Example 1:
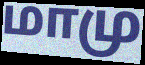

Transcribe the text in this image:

மாமு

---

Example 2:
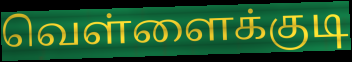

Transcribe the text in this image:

வெள்ளைக்குடி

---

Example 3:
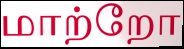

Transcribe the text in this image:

மாற்றோ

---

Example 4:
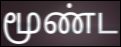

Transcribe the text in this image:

மூண்ட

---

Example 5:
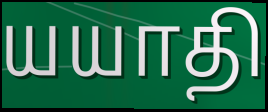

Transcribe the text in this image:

யயாதி